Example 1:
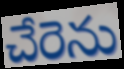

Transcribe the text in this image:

చేరెను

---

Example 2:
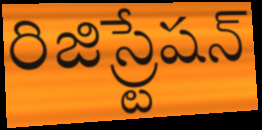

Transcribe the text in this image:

రిజిస్ర్టేషన్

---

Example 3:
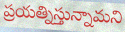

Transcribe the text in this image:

ప్రయత్నిస్తున్నామని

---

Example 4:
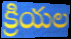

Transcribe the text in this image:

క్రియల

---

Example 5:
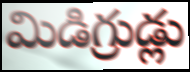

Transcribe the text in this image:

మిడిగ్రుడ్లు